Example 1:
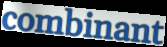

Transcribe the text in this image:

combinant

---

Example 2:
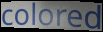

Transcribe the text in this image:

colored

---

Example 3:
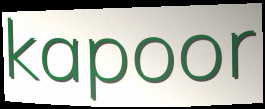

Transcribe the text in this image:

kapoor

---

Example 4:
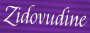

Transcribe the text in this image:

Zidovudine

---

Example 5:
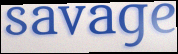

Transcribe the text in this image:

savage